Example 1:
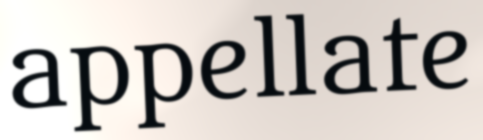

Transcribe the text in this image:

appellate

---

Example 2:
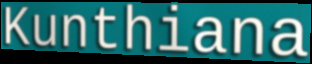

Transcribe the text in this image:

Kunthiana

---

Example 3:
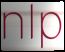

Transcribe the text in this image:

nlp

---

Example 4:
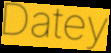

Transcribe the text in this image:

Datey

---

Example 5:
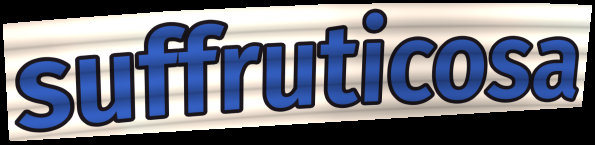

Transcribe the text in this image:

suffruticosa